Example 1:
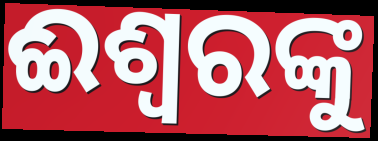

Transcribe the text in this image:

ଈଶ୍ଵରଙ୍କୁ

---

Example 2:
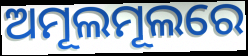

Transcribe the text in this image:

ଅମୂଲମୂଲରେ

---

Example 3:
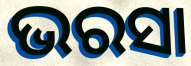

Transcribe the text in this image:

ଭରସା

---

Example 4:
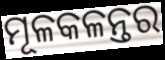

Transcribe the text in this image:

ମୂଳକଳନ୍ତର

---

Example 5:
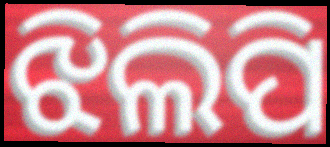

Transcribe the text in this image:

ଝିଲିପି